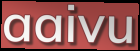
aaivu